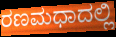
ರಣಮಧಾದಲ್ಲಿ